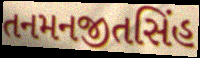
તનમનજીતસિંહ